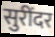
सुरींदर